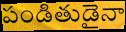
పండితుడైనా